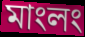
মাংলং